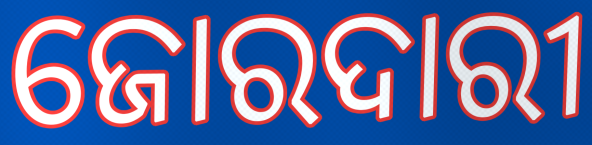
ଜୋରଦାରୀ